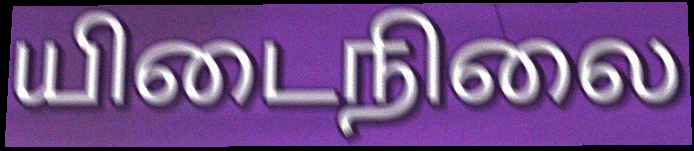
யிடைநிலை